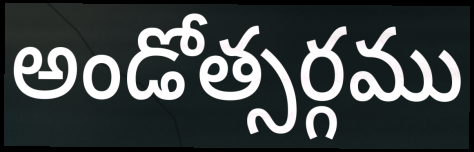
అండోత్సర్గము